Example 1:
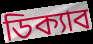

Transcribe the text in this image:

ডিক্যাব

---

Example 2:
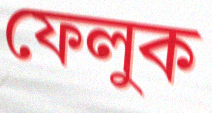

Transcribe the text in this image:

ফেলুক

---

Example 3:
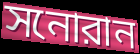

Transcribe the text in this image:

সনোরান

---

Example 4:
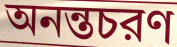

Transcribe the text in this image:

অনন্তচরণ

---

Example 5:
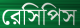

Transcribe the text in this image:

রেসিপিস